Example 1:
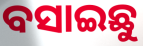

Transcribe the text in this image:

ବସାଇଛୁ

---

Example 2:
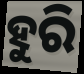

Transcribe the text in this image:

ହୁରି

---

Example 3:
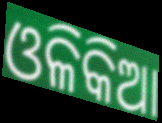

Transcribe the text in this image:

ଓଳିକିଆ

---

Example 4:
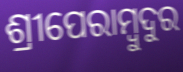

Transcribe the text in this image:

ଶ୍ରୀପେରାମ୍ବୁଦୁର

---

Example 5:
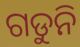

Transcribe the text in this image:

ଗଡୁନି